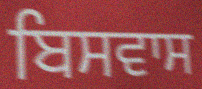
ਬਿਸਵਾਸ